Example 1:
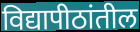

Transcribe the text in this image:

विद्यापीठांतील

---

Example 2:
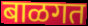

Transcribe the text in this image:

बाळगत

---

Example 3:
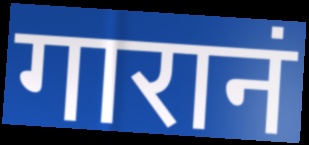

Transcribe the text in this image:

गारानं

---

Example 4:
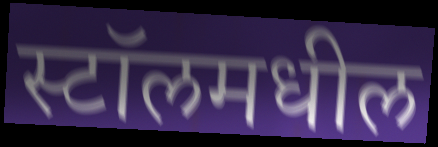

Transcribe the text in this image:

स्टॉलमधील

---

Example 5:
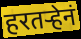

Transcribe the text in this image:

हरतर्‍हेनं